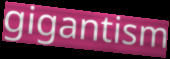
gigantism